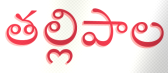
తల్లిపాల